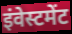
इंवेस्टमेंट